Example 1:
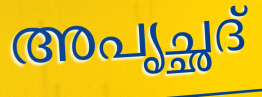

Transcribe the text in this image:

അപൃച്ഛദ്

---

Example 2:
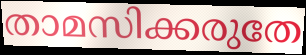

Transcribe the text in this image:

താമസിക്കരുതേ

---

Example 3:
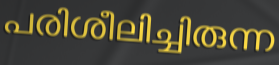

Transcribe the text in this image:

പരിശീലിച്ചിരുന്ന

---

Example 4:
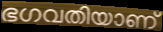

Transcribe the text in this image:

ഭഗവതിയാണ്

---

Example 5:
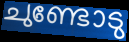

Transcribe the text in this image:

ചുണ്ടോടു